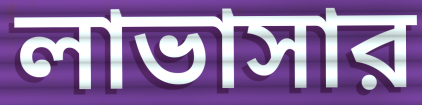
লাভাসার